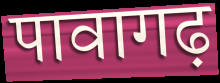
पावागढ़